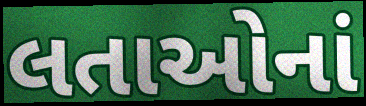
લતાઓનાં